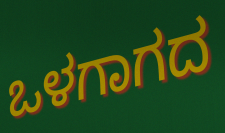
ಒಳಗಾಗದ